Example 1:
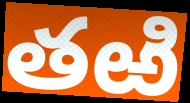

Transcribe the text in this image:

తఱి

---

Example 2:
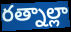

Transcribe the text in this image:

రత్నాల్లా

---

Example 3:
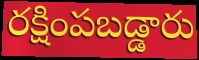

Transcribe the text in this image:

రక్షింపబడ్డారు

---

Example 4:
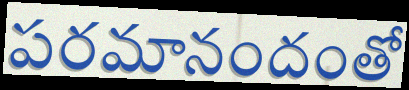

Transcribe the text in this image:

పరమానందంతో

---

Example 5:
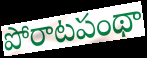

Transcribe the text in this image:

పోరాటపంథా